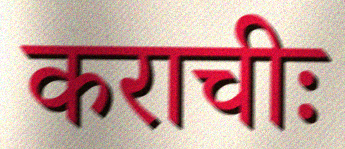
कराचीः